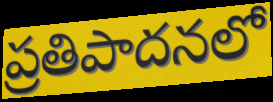
ప్రతిపాదనలో